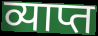
व्याप्त